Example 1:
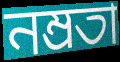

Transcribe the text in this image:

নম্রতা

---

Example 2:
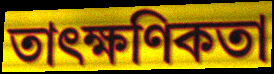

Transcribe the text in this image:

তাৎক্ষণিকতা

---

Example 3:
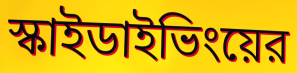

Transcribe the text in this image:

স্কাইডাইভিংয়ের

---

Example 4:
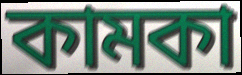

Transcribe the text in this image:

কামকা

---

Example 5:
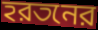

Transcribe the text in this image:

হরতনের